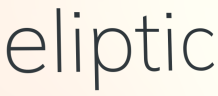
eliptic